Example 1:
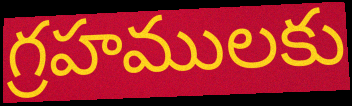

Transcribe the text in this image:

గ్రహములకు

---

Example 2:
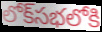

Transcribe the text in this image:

లోక్‌సభలోకి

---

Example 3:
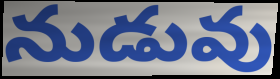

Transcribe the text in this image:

నుడువు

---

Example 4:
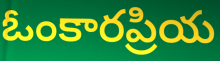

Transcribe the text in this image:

ఓంకారప్రియ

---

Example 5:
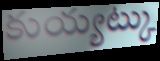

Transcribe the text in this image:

కుయ్యట్కు